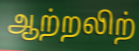
ஆற்றலிற்